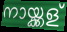
നായ്ക്കള്